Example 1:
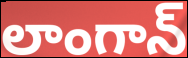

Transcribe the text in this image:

లాంగాన్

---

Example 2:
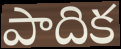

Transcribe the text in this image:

పాదిక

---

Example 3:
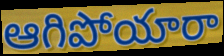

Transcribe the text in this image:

ఆగిపోయారా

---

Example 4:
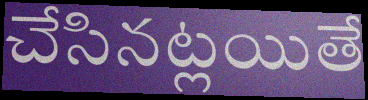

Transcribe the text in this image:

చేసినట్లయితే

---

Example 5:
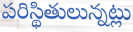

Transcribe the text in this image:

పరిస్థితులున్నట్లు